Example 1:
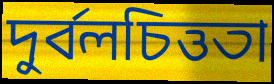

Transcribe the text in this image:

দুর্বলচিত্ততা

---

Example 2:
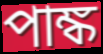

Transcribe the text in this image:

পাঙ্ক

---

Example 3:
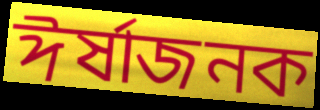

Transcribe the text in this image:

ঈর্ষাজনক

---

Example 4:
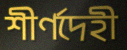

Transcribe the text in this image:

শীর্ণদেহী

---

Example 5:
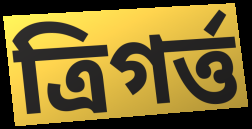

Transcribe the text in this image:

ত্রিগর্ত্ত